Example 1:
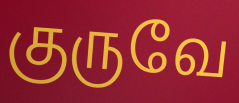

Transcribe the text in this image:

குருவே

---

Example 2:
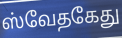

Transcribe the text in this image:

ஸ்வேதகேது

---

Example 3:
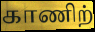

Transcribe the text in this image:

காணிற்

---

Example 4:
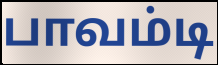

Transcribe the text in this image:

பாவம்டி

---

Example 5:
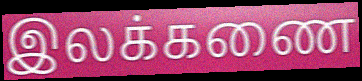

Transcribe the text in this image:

இலக்கணை